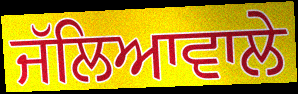
ਜੱਲਿਆਵਾਲੇ